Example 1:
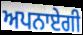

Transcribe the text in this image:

ਅਪਨਾਏਗੀ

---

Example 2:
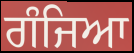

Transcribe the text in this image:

ਗੰਜਿਆ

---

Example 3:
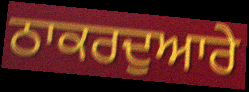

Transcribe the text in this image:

ਠਾਕਰਦੁਆਰੇ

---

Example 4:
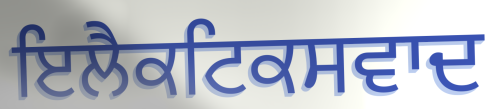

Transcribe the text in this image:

ਇਲੈਕਟਿਕਸਵਾਦ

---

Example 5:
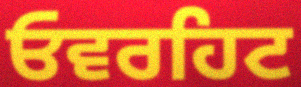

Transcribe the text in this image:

ਓਵਰਹਿਟ